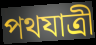
পথযাত্রী